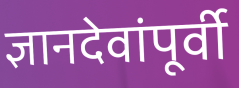
ज्ञानदेवांपूर्वी